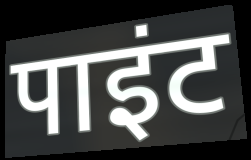
पाइंट